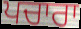
ਪਚਾਰਾ